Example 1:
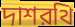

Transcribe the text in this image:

দাশরথি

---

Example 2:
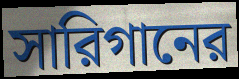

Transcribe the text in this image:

সারিগানের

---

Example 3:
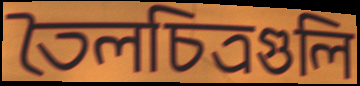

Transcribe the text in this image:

তৈলচিত্রগুলি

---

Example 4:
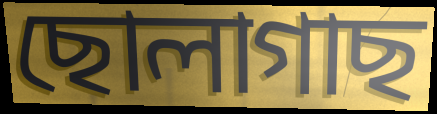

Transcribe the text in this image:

ছোলাগাছ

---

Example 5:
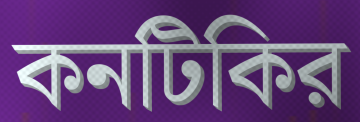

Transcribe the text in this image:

কনটিকির